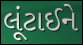
લૂંટાઈને